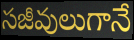
సజీవులుగానే